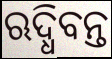
ଋଦ୍ଧିବନ୍ତ